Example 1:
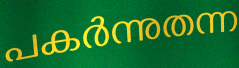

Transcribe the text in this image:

പകർന്നുതന്ന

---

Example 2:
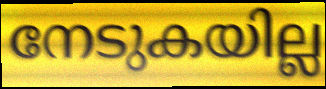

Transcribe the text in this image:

നേടുകയില്ല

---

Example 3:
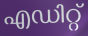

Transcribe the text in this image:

എഡിറ്റ്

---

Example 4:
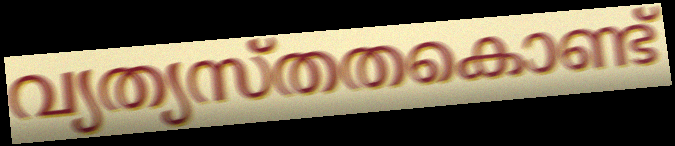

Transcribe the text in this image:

വ്യത്യസ്തതകൊണ്ട്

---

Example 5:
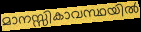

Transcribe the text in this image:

മാനസ്സികാവസ്ഥയിൽ